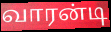
வாரன்டி